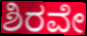
ಶಿರವೇ